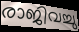
രാജിവച്ചു